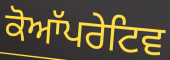
ਕੋਆੱਪਰੇਟਿਵ